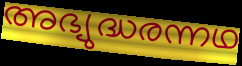
അഭ്യുദ്ധരന്നഥ